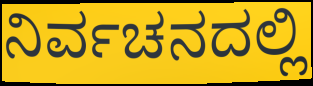
ನಿರ್ವಚನದಲ್ಲಿ